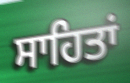
ਸਾਹਿਤਾਂ